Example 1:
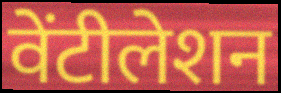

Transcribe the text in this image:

वेंटीलेशन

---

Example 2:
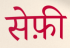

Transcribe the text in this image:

सेफ़ी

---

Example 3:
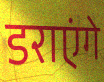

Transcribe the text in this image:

डराएंगे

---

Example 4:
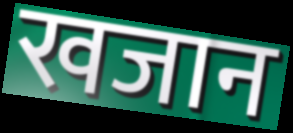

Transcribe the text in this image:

खजान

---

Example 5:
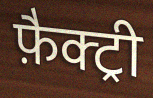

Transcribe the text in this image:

फ़ैक्ट्री